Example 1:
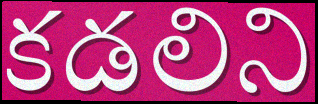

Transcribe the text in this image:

కడలిని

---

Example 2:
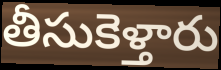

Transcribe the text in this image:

తీసుకెళ్తారు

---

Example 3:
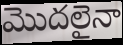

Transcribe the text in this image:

మొదలైనా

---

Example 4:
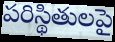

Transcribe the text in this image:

పరిస్థితులపై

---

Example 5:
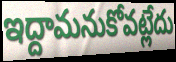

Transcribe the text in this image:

ఇద్దామనుకోవట్లేదు